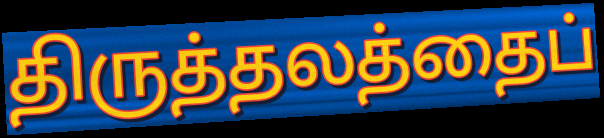
திருத்தலத்தைப்